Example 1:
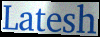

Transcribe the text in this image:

Latesh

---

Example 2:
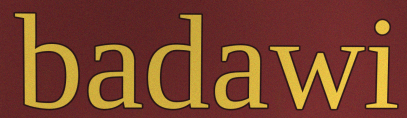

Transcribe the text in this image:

badawi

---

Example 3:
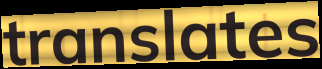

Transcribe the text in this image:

translates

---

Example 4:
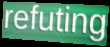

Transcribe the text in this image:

refuting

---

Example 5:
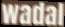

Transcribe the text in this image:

wadal